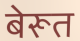
बेरूत